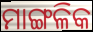
ମାଙ୍ଗଳିକ